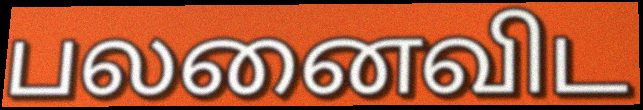
பலனைவிட